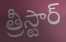
త్రీస్టార్